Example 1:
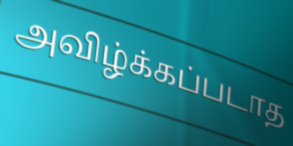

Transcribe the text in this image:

அவிழ்க்கப்படாத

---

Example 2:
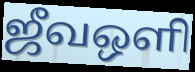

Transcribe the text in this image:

ஜீவஒளி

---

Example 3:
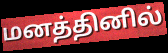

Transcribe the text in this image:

மனத்தினில்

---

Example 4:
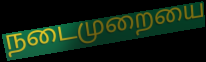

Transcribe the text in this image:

நடைமுறையை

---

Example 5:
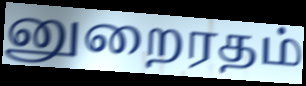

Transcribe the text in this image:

னுறைரதம்